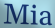
Mia